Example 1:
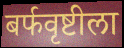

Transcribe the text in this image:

बर्फवृष्टीला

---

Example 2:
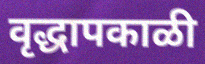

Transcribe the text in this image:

वृद्धापकाळी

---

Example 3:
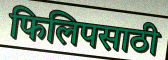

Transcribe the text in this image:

फिलिपसाठी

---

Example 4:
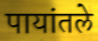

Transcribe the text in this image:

पायांतले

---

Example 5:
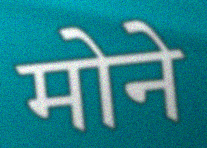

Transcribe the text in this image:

मोने